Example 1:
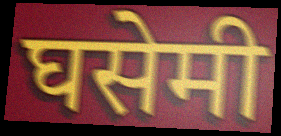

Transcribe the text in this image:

घसेमी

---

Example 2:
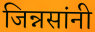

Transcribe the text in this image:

जिन्नसांनी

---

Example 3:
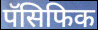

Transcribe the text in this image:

पॅसिफिक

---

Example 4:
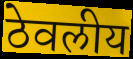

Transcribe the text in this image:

ठेवलीय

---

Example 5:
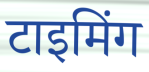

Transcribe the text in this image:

टाइमिंग